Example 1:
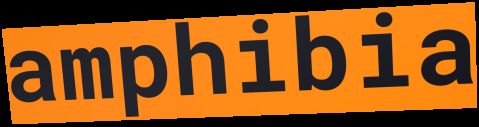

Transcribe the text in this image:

amphibia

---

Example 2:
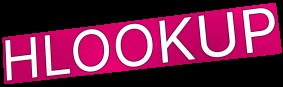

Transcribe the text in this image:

HLOOKUP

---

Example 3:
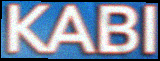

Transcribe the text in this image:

KABI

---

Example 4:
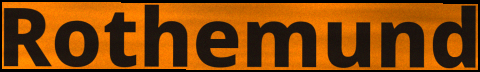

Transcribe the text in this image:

Rothemund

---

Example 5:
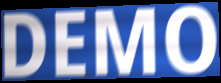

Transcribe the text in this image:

DEMO